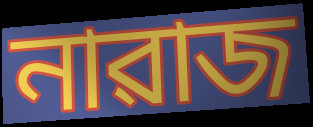
নাৱাজ